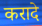
करादे